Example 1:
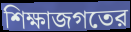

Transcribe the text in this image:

শিক্ষাজগতের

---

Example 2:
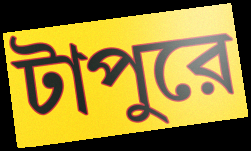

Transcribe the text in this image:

টাপুরে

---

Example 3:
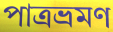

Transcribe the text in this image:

পাত্রভ্রমণ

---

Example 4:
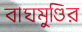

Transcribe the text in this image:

বাঘমুণ্ডির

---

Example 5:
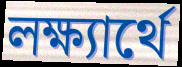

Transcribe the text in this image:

লক্ষ্যার্থে